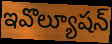
ఇవొల్యూషన్